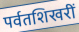
पर्वतशिखरीं